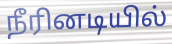
நீரினடியில்